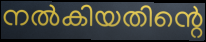
നൽകിയതിന്റെ